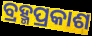
ବ୍ରହ୍ମପ୍ରକାଶ